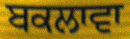
ਬਕਲਾਵਾ